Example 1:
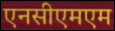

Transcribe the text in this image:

एनसीएमएम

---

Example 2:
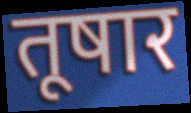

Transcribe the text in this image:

तूषार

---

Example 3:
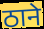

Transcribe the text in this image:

ठाने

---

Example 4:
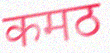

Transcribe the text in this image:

कमठ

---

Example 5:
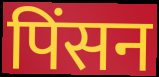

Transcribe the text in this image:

पिंसन